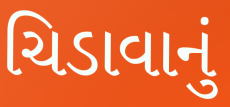
ચિડાવાનું